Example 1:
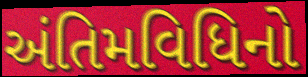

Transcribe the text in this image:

અંતિમવિધિનો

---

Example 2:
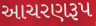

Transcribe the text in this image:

આચરણરૂપ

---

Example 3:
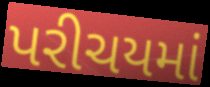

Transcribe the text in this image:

પરીચયમાં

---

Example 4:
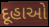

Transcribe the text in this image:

દૂહાઓ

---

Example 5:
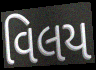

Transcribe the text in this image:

વિલય